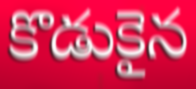
కొడుకైన